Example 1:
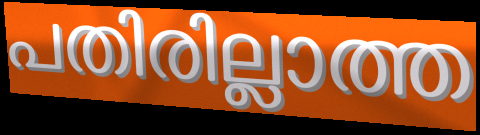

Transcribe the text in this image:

പതിരില്ലാത്ത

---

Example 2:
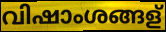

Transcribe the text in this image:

വിഷാംശങ്ങള്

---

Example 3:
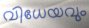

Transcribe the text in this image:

വിധേയവും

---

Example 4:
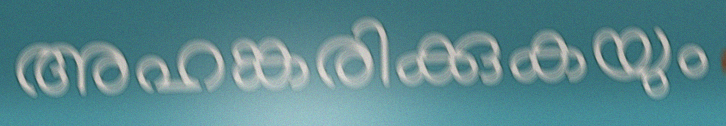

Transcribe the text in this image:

അഹങ്കരിക്കുകയും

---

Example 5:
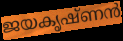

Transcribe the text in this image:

ജയകൃഷ്ണൻ